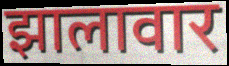
झालावार